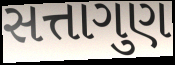
સત્તાગુણ